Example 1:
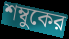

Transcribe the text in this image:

শম্বুকের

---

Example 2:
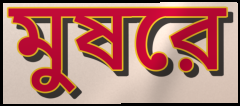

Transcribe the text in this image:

মুষরে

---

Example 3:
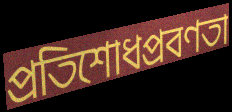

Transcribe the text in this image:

প্রতিশোধপ্রবণতা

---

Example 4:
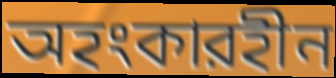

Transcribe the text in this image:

অহংকারহীন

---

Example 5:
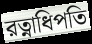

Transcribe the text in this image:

রত্নাধিপতি